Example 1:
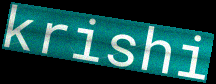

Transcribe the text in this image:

krishi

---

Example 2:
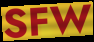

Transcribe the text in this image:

SFW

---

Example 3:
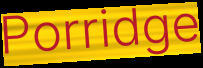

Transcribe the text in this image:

Porridge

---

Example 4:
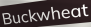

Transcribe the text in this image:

Buckwheat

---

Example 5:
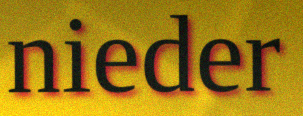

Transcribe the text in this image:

nieder